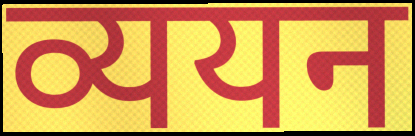
व्ययन